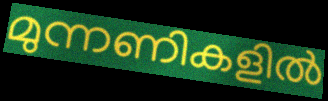
മുന്നണികളിൽ